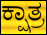
ಕ್ಷಾತ್ರ